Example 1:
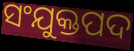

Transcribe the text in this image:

ସଂଯୁକ୍ତପଦ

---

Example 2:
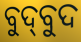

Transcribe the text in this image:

ବୁଦ୍‌ବୁଦ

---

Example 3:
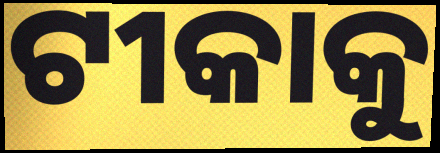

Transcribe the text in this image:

ଟୀକାକୁ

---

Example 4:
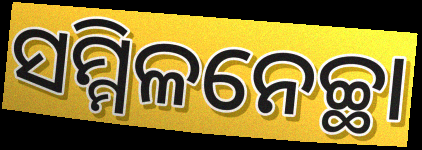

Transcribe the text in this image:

ସମ୍ମିଳନେଚ୍ଛା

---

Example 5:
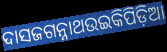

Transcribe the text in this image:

ଦାସଜଗନ୍ନାଥଉଇକିପିଡ଼ିଆ